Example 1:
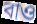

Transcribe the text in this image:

বাও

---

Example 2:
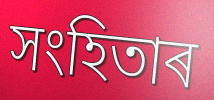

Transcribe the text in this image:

সংহিতাৰ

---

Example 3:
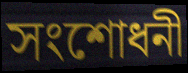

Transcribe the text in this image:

সংশোধনী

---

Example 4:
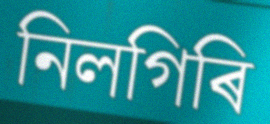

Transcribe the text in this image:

নিলগিৰি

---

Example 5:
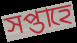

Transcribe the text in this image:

সপ্তাহে